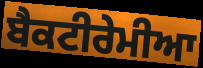
ਬੈਕਟੀਰੇਮੀਆ